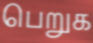
பெறுக